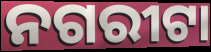
ନଗରୀଟା